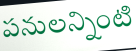
పనులన్నింటి